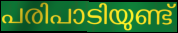
പരിപാടിയുണ്ട്